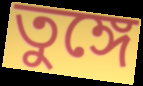
তুঙ্গে